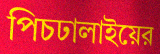
পিচঢালাইয়ের